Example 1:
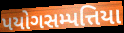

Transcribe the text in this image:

પયોગસમ્પત્તિયા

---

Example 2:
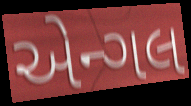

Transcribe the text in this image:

એન્ગલ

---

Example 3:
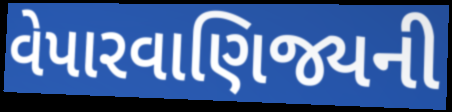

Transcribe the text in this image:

વેપારવાણિજ્યની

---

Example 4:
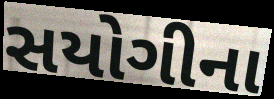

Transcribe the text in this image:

સયોગીના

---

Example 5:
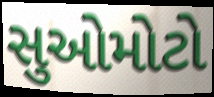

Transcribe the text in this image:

સુઓમોટો